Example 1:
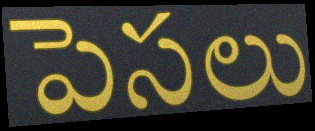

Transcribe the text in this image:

పెసలు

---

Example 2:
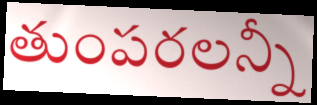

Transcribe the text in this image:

తుంపరలన్నీ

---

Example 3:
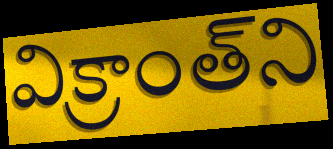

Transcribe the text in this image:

విక్రాంత్‌ని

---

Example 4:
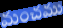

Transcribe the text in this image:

మంచము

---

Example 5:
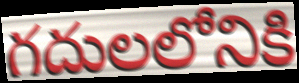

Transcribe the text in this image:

గదులలోనికి